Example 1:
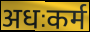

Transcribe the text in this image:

अधःकर्म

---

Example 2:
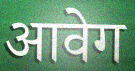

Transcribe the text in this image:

आवेग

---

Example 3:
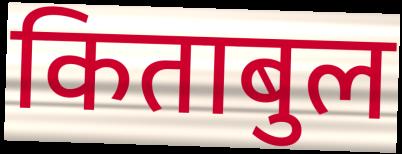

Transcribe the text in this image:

किताबुल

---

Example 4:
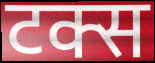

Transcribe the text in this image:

टक्स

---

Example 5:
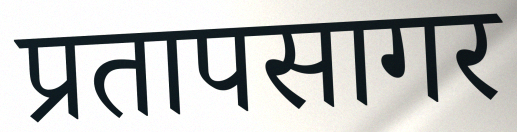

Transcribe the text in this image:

प्रतापसागर